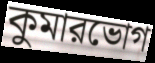
কুমারভোগ